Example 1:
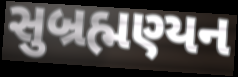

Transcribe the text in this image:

સુબ્રહ્મણ્યન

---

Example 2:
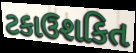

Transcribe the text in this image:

ટકાઉશકિત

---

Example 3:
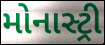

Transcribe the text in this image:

મોનાસ્ટ્રી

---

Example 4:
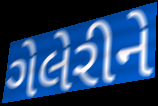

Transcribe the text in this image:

ગેલેરીને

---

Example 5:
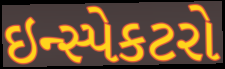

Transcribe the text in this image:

ઇન્સ્પેકટરો